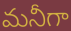
మనీగా